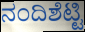
ನಂದಿಶೆಟ್ಟಿ